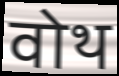
वोथ